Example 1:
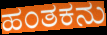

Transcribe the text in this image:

ಹಂತಕನು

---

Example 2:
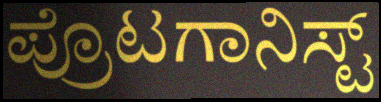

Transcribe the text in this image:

ಪ್ರೊಟಗಾನಿಸ್ಟ್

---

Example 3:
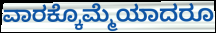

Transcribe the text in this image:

ವಾರಕ್ಕೊಮ್ಮೆಯಾದರೂ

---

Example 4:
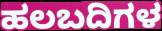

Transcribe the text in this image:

ಹಲಬದಿಗಳ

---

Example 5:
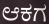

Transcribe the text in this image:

ಆಕಗ